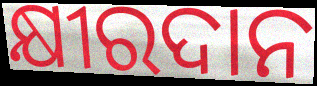
କ୍ଷୀରଦାନ